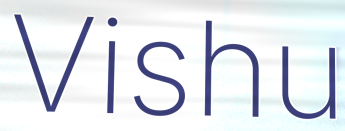
Vishu